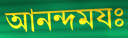
আনন্দমযঃ